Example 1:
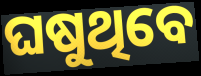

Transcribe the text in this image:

ଘଷୁଥିବେ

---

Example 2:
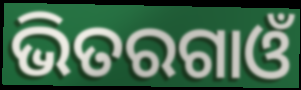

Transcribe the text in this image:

ଭିତରଗାଓଁ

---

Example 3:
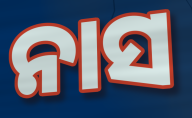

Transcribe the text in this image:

ନାସ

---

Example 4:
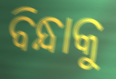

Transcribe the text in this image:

ବିନ୍ଧାକୁ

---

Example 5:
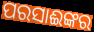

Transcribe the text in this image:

ପରସାଈଙ୍କର